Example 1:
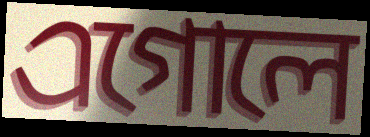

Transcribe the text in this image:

এগোলে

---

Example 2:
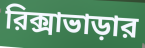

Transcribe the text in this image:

রিক্সাভাড়ার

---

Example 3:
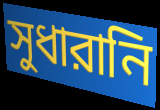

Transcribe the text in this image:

সুধারানি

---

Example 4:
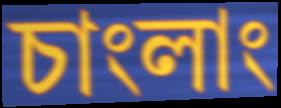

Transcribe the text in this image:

চাংলাং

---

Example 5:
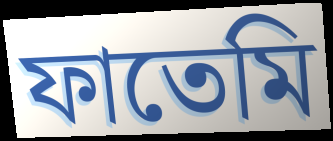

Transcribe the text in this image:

ফাতেমি